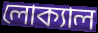
লোক্যাল